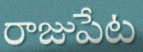
రాజుపేట